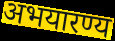
अभयारण्य